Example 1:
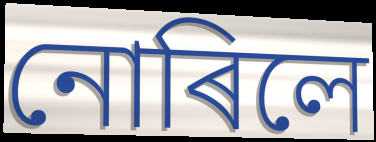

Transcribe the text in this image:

নোৰিলে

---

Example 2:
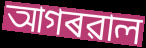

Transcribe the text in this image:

আগৰৱাল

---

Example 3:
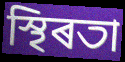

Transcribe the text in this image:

স্থিৰতা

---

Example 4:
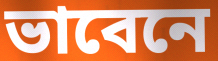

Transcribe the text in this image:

ভাবেনে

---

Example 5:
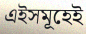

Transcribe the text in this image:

এইসমূহেই